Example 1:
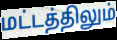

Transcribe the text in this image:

மட்டத்திலும்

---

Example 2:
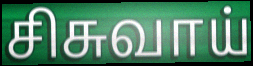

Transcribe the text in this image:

சிசுவாய்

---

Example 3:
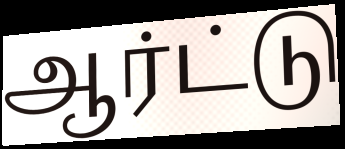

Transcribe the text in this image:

ஆர்ட்டு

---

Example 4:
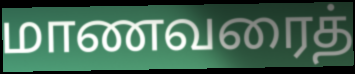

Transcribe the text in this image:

மாணவரைத்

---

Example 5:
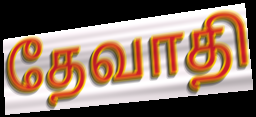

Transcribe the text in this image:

தேவாதி